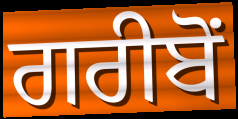
ਗਰੀਬੋਂ